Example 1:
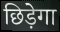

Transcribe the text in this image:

छिड़ेगा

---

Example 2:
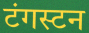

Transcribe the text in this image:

टंगस्टन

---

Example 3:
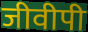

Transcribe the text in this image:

जीवीपी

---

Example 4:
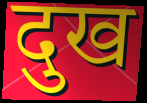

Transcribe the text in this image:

दुख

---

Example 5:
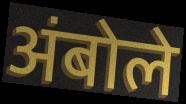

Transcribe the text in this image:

अंबोले